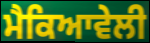
ਮੈਕਿਆਵੇਲੀ